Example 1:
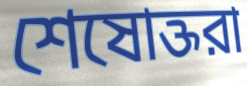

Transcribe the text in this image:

শেষোক্তরা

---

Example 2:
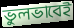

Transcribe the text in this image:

ভুলভাবেই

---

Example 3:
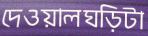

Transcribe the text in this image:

দেওয়ালঘড়িটা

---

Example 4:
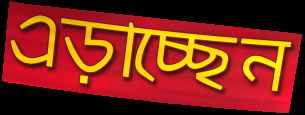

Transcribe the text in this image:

এড়াচ্ছেন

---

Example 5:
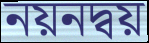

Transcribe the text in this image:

নয়নদ্বয়